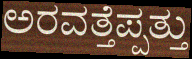
ಅರವತ್ತೆಪ್ಪತ್ತು